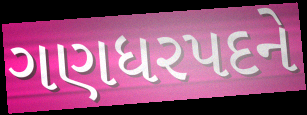
ગણધરપદને